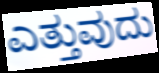
ಎತ್ತುವುದು